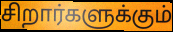
சிறார்களுக்கும்